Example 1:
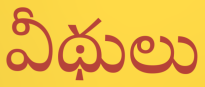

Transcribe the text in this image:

వీథులు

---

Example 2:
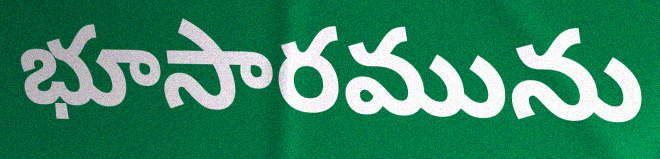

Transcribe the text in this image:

భూసారమును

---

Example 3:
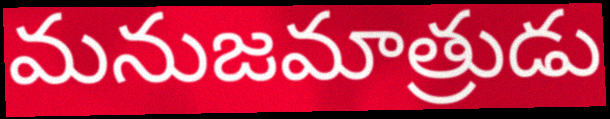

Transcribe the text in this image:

మనుజమాత్రుడు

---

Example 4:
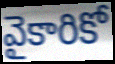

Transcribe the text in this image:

వైకారికో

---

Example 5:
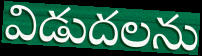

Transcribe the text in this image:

విడుదలను